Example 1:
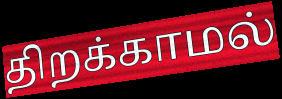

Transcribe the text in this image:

திறக்காமல்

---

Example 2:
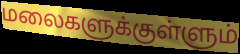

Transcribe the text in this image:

மலைகளுக்குள்ளும்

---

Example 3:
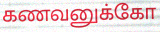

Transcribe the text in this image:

கணவனுக்கோ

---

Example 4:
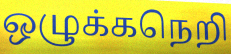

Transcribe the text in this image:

ஒழுக்கநெறி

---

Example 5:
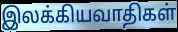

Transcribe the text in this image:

இலக்கியவாதிகள்